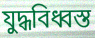
যুদ্ধবিধ্বস্ত